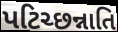
પટિચ્છન્નાતિ